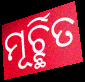
ମୂର୍ଚ୍ଛିତ